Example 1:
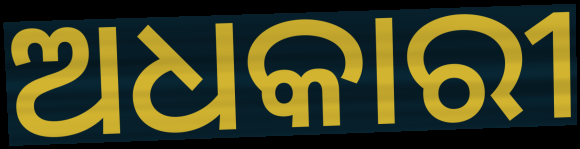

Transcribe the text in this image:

ଅଧକାରୀ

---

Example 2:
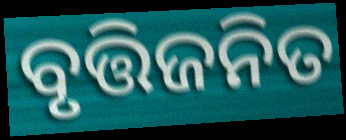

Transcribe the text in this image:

ବୃତ୍ତିଜନିତ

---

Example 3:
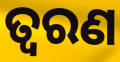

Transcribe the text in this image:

ତ୍ୱରଣ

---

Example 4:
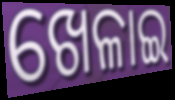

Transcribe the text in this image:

ଖେଳାଇ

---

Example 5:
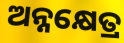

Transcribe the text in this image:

ଅନ୍ନକ୍ଷେତ୍ର